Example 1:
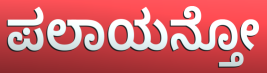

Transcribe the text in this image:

ಪಲಾಯನ್ತೋ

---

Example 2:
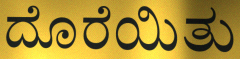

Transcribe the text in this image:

ದೊರೆಯಿತು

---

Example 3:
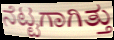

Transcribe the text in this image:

ನೆಟ್ಟಗಾಗಿತ್ತು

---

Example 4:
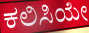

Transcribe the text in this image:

ಕಲಿಸಿಯೇ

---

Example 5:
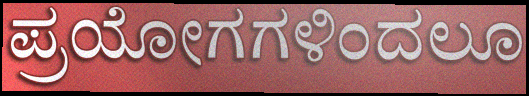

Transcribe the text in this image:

ಪ್ರಯೋಗಗಳಿಂದಲೂ